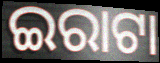
ଇରାଟା